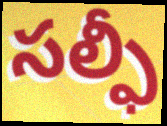
సల్ఫీ